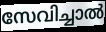
സേവിച്ചാൽ